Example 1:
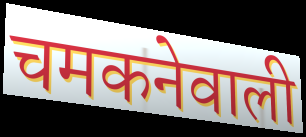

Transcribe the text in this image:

चमकनेवाली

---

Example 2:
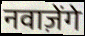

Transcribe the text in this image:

नवाज़ेंगे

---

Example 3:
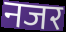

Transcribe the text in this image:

नजर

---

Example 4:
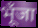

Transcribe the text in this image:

भूँजा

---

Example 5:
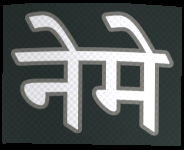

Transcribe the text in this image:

नेमे